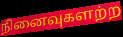
நினைவுகளற்ற